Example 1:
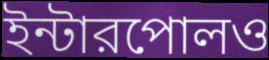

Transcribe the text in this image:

ইন্টারপোলও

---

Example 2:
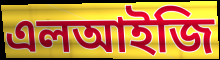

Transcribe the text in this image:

এলআইজি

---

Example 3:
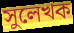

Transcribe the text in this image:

সুলেখক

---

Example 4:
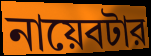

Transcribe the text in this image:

নায়েবটার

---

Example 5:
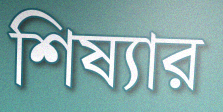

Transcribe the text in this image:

শিষ্যার